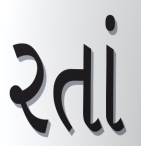
રતાં